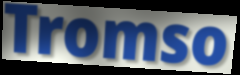
Tromso